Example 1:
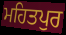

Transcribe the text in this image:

ਮਹਿਤਪੁਰ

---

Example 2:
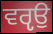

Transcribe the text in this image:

ਵਰੵਉ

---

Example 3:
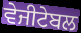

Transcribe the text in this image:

ਵੇਜੀਟੇਬਲ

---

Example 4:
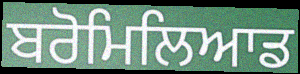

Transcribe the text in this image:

ਬਰੋਮਿਲਿਆਡ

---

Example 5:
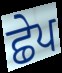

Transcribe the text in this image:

ਛੇਪ